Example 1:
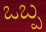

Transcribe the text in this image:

ಒಬ್ಪ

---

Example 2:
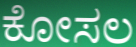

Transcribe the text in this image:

ಕೋಸಲ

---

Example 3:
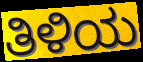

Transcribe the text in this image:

ತಿಳಿಯ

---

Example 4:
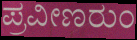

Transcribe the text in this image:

ಪ್ರವೀಣರುಂ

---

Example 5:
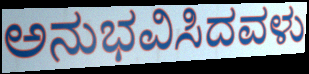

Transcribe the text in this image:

ಅನುಭವಿಸಿದವಳು